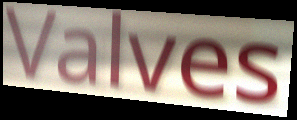
Valves